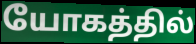
யோகத்தில்